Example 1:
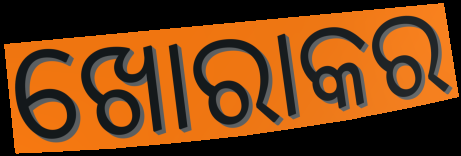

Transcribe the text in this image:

ଖୋରାକର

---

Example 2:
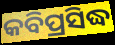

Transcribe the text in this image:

କବିପ୍ରସିଦ୍ଧ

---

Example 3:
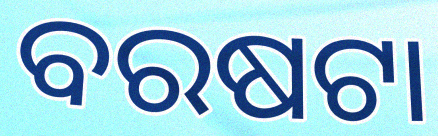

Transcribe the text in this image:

ବରଷଟା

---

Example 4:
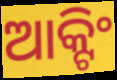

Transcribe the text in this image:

ଆକ୍ଟିଂ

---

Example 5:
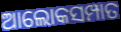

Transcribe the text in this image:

ଆଲୋକସମ୍ପାତ